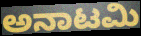
ಅನಾಟಮಿ